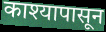
काश्यापासून